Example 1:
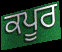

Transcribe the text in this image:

ਕਪੂਰ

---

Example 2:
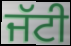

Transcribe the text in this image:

ਜੱਟੀ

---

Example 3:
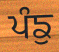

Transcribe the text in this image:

ਪੰਙੁ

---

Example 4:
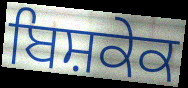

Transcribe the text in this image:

ਬਿਸ਼ਕੇਕ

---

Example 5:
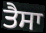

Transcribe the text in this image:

ਤੈਸਾ